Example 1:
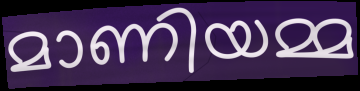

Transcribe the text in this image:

മാണിയമ്മ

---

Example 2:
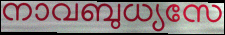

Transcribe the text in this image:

നാവബുധ്യസേ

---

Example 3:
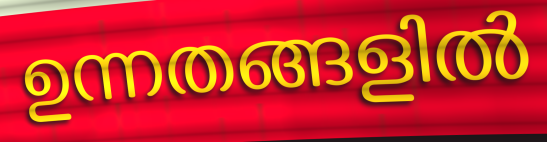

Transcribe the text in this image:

ഉന്നതങ്ങളിൽ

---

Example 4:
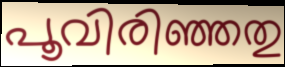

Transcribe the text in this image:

പൂവിരിഞ്ഞതു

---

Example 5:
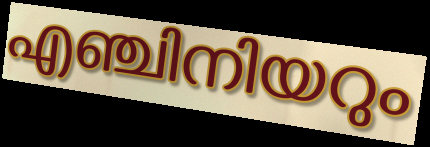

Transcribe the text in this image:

എഞ്ചിനിയറും